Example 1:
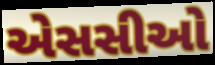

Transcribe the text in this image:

એસસીઓ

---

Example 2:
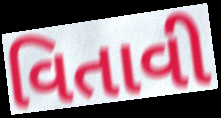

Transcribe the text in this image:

વિતાવી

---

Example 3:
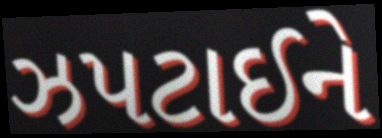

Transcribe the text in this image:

ઝપટાઈને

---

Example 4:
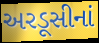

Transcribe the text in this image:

અરડૂસીનાં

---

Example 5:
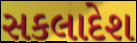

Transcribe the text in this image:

સકલાદેશ